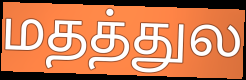
மதத்துல